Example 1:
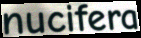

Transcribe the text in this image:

nucifera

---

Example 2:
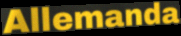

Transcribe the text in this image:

Allemanda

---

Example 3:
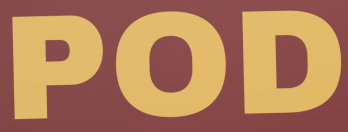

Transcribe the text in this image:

POD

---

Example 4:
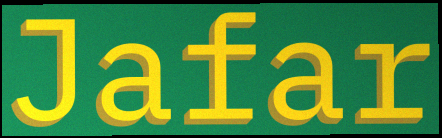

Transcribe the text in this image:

Jafar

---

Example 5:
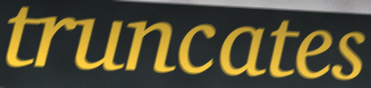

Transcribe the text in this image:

truncates